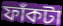
ফাঁকটা